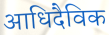
आधिदैविक